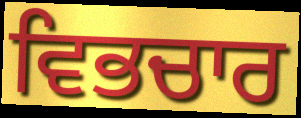
ਵਿਭਚਾਰ